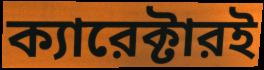
ক্যারেক্টারই